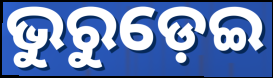
ଭୁରୁଡ଼େଇ